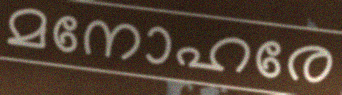
മനോഹരേ